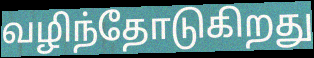
வழிந்தோடுகிறது